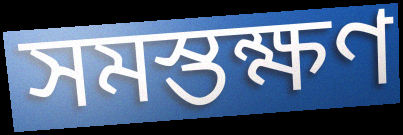
সমস্তক্ষণ